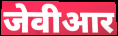
जेवीआर